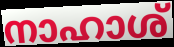
നാഹാശ്